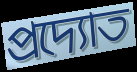
প্রদ্যোত